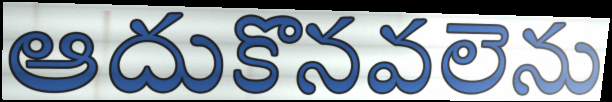
ఆదుకొనవలెను